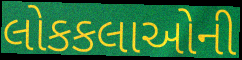
લોકકલાઓની